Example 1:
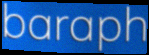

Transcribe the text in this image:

baraph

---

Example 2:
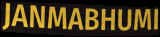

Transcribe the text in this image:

JANMABHUMI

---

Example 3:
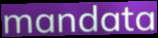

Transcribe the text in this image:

mandata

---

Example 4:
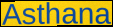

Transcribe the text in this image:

Asthana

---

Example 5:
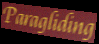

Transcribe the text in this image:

Paragliding